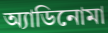
অ্যাডিনোমা